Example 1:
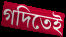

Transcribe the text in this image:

গদিতেই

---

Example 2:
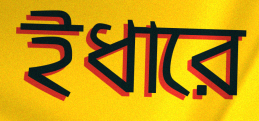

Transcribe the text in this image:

ইধারে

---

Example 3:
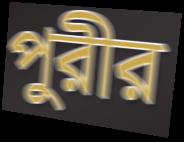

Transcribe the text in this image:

পুরীর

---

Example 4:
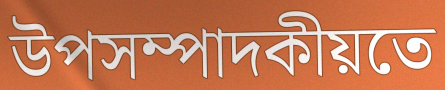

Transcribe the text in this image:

উপসম্পাদকীয়তে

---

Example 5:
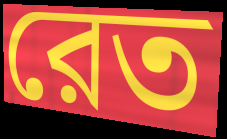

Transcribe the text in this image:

রেত